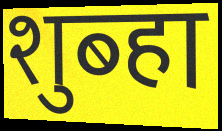
शुब्हा